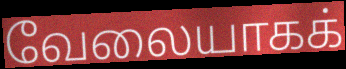
வேலையாகக்